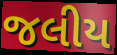
જલીય